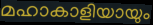
മഹാകാളിയായും